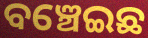
ବଞ୍ଚେଇଛ